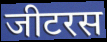
जीटरस